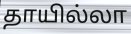
தாயில்லா